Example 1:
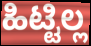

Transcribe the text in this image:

ಹಿಟ್ಟಿಲ್ಲ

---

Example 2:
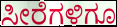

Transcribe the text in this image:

ಸೀರೆಗಳಿಗೂ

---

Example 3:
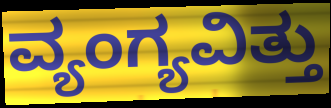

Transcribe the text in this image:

ವ್ಯಂಗ್ಯವಿತ್ತು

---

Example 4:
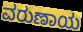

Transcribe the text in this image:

ವರುಣಾಯ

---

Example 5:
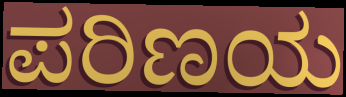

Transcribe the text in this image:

ಪರಿಣಯ